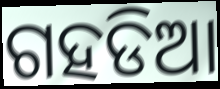
ଗହଡିଆ